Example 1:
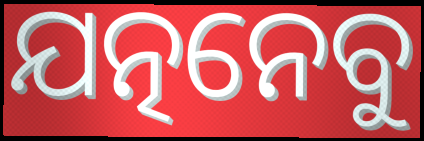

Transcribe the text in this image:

ଯତ୍ନନେବୁ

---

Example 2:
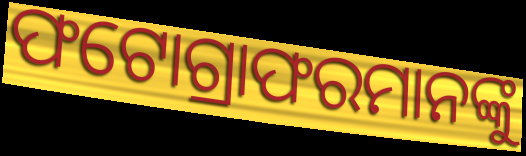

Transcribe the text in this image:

ଫଟୋଗ୍ରାଫରମାନଙ୍କୁ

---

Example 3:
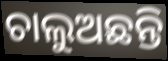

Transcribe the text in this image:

ଚାଲୁଅଛନ୍ତି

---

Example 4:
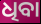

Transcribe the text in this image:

ଧିବା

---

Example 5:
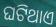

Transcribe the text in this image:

ଘଟିଥାଏ